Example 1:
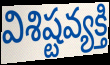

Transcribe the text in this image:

విశిష్టవ్యక్తి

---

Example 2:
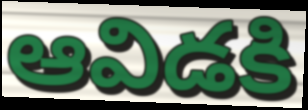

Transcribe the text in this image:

ఆవిడకి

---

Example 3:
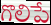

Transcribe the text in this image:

గొలిపే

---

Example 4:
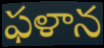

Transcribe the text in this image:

ఫళాన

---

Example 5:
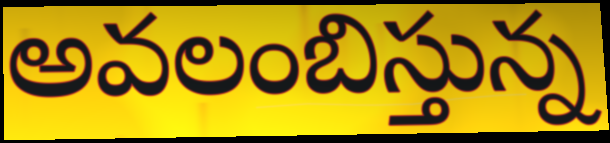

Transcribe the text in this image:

అవలంబిస్తున్న